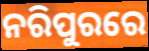
ନରିପୁରରେ